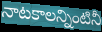
నాటకాలన్నింటినీ